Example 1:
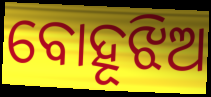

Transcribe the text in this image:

ବୋହୂଝିଅ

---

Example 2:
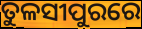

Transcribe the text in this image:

ତୁଳସୀପୁରରେ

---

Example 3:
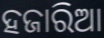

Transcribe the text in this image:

ହଜାରିଆ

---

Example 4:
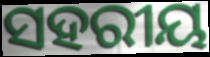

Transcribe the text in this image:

ସହରୀୟ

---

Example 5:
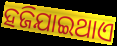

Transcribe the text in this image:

ହଜିଯାଇଥାଏ